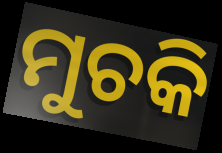
ମୁଚକି